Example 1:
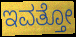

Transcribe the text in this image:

ಇವತ್ತೋ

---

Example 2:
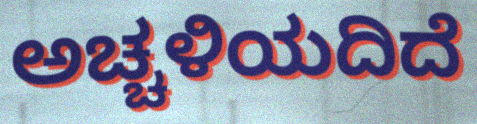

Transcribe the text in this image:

ಅಚ್ಚಳಿಯದಿದೆ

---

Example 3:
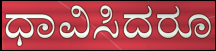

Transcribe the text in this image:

ಧಾವಿಸಿದರೂ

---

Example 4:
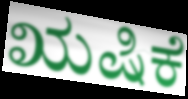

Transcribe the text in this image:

ಋಷಿಕೆ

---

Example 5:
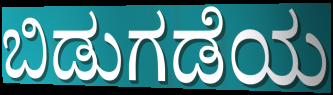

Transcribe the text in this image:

ಬಿಡುಗಡೆಯ